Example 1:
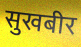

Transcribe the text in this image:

सुखबीर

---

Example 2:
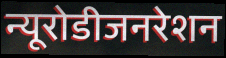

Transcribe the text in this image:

न्यूरोडीजनरेशन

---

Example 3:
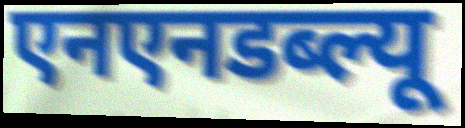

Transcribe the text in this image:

एनएनडब्ल्यू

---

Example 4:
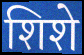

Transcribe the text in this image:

शिशे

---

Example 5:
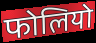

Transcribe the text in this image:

फोलियो